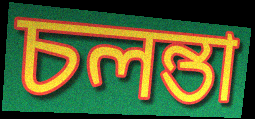
চলন্তা